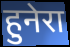
हुनेरा